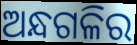
ଅନ୍ଧଗଳିର